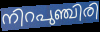
നിറപുഞ്ചിരി